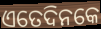
ଏତେଦିନକେ